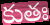
కుతః